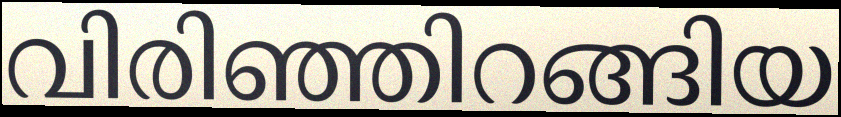
വിരിഞ്ഞിറങ്ങിയ